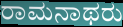
ರಾಮನಾಥರು